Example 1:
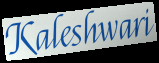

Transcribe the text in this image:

Kaleshwari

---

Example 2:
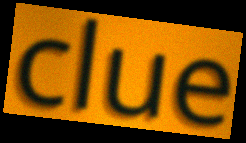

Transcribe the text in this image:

clue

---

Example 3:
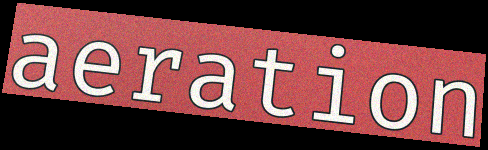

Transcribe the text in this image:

aeration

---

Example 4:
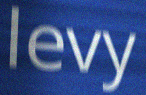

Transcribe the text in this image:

levy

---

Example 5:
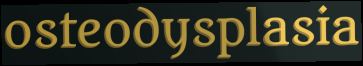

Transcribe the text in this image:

osteodysplasia